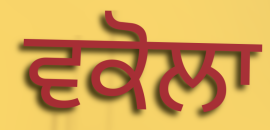
ਵਕੋਲਾ